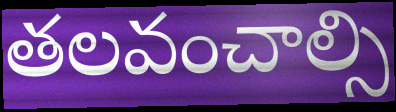
తలవంచాల్సి